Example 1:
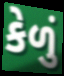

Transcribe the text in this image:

કેળું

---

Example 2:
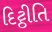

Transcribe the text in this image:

દિટ્ઠીતિ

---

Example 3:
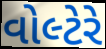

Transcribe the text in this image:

વોલ્ટેરે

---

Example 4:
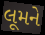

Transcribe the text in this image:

લૂમને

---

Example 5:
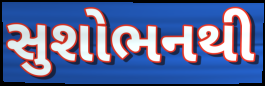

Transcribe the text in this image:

સુશોભનથી